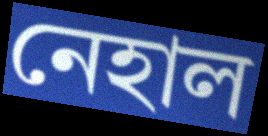
নেহাল